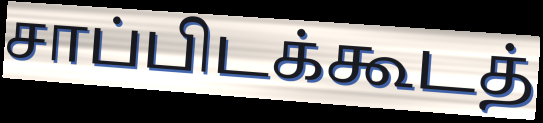
சாப்பிடக்கூடத்